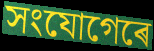
সংযোগেৰে